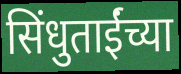
सिंधुताईंच्या